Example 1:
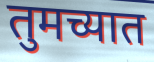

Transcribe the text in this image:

तुमच्यात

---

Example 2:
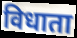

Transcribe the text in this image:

विधाता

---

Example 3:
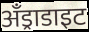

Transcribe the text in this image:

अँड्राडाइट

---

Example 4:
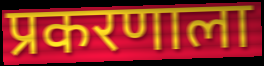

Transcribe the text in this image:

प्रकरणाला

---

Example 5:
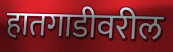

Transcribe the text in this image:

हातगाडीवरील